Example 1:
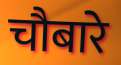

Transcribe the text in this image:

चौबारे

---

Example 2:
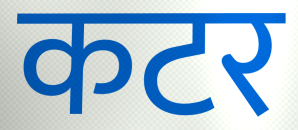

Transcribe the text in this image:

कटर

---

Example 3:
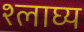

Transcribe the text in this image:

श्लाघ्य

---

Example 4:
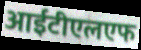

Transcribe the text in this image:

आईटीएलएफ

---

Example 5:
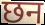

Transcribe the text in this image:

छन